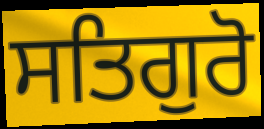
ਸਤਿਗੁਰੋ